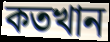
কতখান